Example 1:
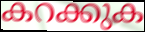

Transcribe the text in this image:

കറക്കുക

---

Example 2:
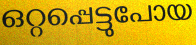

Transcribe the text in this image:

ഒറ്റപ്പെട്ടുപോയ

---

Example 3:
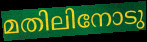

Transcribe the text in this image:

മതിലിനോടു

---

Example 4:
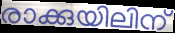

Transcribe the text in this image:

രാക്കുയിലിന്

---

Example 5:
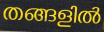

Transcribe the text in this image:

തങ്ങളിൽ